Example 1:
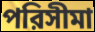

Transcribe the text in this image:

পরিসীমা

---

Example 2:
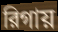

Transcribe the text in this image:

রিগায়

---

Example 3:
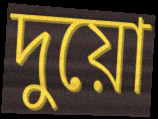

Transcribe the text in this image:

দুয়ো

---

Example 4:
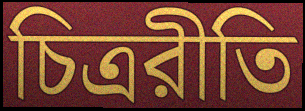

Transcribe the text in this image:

চিত্ররীতি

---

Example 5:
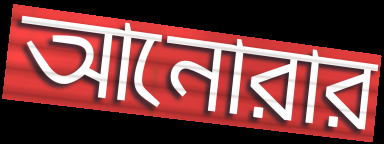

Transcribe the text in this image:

আনোরার